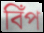
বিঁপ